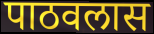
पाठवलास